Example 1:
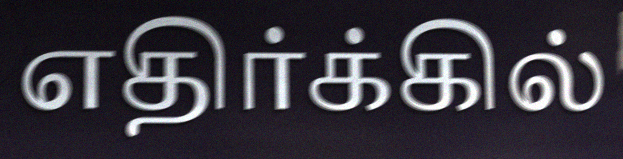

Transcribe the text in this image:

எதிர்க்கில்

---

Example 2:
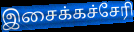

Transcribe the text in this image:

இசைக்கச்சேரி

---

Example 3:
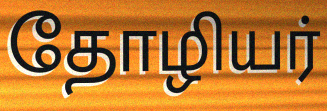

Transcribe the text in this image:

தோழியர்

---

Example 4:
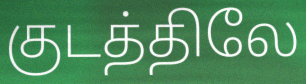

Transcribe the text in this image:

குடத்திலே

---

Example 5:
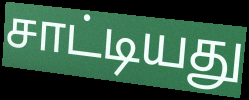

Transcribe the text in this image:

சாட்டியது